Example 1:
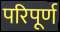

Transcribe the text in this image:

परिपूर्ण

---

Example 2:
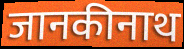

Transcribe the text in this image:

जानकीनाथ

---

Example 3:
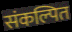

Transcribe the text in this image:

संकल्पित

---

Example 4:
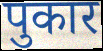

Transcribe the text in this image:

पुकार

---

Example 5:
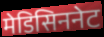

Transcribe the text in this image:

मेडिसिननेट